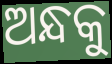
ଅନ୍ଧକୁ